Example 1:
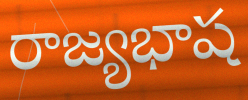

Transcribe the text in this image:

రాజ్యభాష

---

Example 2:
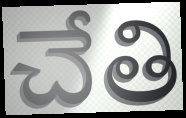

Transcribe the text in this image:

చేతి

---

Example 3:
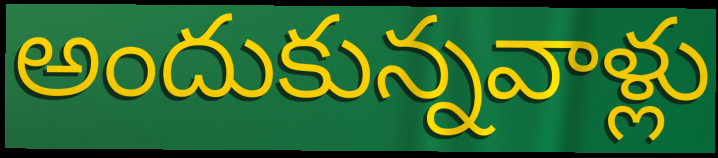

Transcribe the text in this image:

అందుకున్నవాళ్లు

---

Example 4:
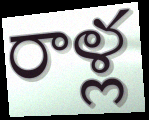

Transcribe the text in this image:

రాళ్ల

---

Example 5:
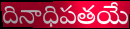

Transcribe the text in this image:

దినాధిపతయే